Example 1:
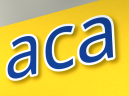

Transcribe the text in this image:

aca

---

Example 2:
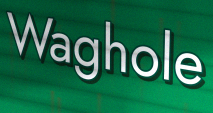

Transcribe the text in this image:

Waghole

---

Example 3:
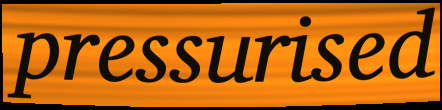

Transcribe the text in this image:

pressurised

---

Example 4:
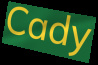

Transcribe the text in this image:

Cady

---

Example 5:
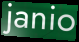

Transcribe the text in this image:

janio